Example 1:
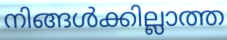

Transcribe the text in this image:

നിങ്ങൾക്കില്ലാത്ത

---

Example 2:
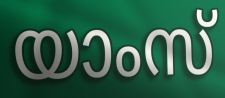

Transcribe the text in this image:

യാംസ്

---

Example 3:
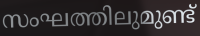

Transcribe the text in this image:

സംഘത്തിലുമുണ്ട്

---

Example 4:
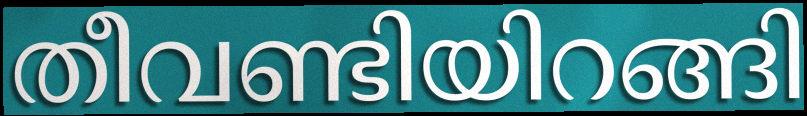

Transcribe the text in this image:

തീവണ്ടിയിറങ്ങി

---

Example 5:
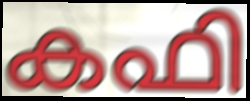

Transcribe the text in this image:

കഫി